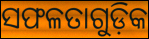
ସଫଳତାଗୁଡ଼ିକ